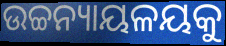
ଉଚ୍ଚନ୍ୟାୟଳୟକୁ